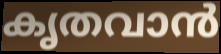
കൃതവാൻ